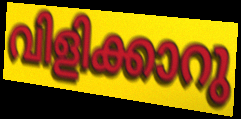
വിളിക്കാറു